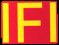
IFI